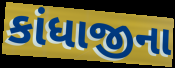
કાંધાજીના